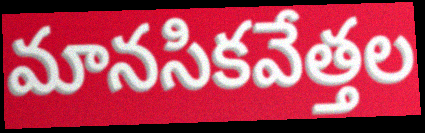
మానసికవేత్తల